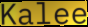
Kalee